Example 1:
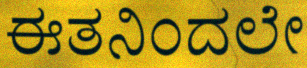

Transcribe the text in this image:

ಈತನಿಂದಲೇ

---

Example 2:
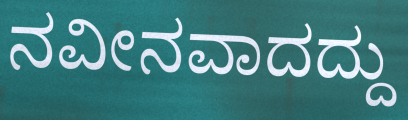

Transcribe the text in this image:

ನವೀನವಾದದ್ದು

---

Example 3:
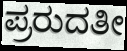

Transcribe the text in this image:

ಪ್ರರುದತೀ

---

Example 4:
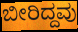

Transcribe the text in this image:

ಬೀರಿದ್ದವು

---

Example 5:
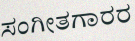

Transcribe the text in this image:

ಸಂಗೀತಗಾರರ